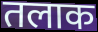
तलाक